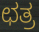
ಛತ್ರ